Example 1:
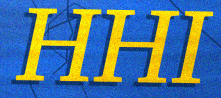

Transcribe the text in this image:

HHI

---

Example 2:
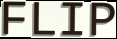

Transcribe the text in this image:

FLIP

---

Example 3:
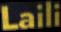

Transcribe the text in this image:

Laili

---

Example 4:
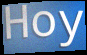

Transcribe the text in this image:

Hoy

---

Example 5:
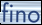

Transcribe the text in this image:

fino